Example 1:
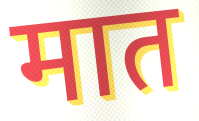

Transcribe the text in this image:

मात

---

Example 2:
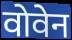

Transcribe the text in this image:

वोवेन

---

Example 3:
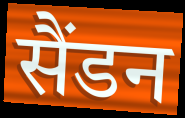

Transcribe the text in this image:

सैंडन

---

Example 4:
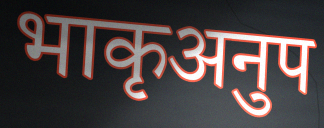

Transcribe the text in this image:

भाकृअनुप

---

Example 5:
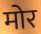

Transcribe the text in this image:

मोर